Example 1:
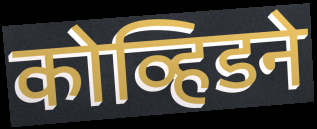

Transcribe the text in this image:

कोव्हिडने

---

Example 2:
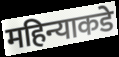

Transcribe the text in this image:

महिन्याकडे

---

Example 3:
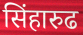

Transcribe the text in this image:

सिंहारुढ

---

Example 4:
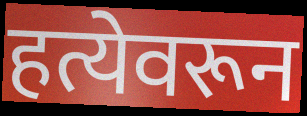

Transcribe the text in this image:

हत्येवरून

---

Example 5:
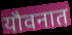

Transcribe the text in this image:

यौवनात